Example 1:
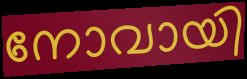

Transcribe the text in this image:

നോവായി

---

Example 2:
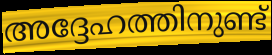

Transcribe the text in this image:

അദ്ദേഹത്തിനുണ്ട്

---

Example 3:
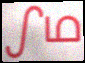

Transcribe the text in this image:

ഽഥ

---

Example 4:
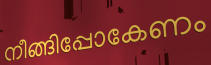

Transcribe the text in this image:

നീങ്ങിപ്പോകേണം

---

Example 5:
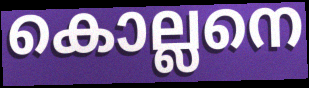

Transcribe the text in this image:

കൊല്ലനെ